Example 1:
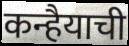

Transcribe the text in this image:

कन्हैयाची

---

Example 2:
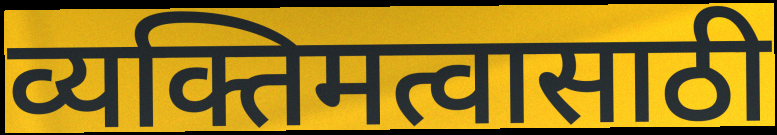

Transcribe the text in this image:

व्यक्तिमत्वासाठी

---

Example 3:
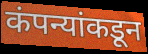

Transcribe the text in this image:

कंपन्यांकडून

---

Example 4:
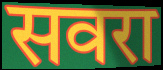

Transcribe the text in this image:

सवरा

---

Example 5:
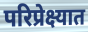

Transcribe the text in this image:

परिप्रेक्ष्यात